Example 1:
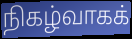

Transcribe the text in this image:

நிகழ்வாகக்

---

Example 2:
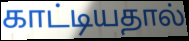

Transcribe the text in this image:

காட்டியதால்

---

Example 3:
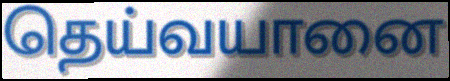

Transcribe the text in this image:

தெய்வயானை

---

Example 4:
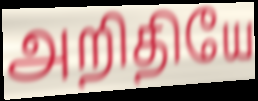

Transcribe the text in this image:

அறிதியே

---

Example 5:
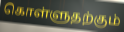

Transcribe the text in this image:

கொள்ளுதற்கும்